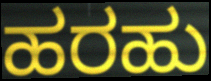
ಹರಹು